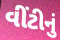
વીંટીનું